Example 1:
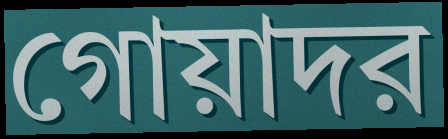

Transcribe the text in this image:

গোয়াদর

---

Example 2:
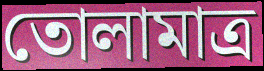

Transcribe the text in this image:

তোলামাত্র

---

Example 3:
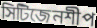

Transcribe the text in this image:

সিটিজেনশীপ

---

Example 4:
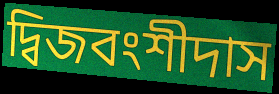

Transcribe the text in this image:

দ্বিজবংশীদাস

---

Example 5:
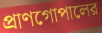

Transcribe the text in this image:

প্রাণগোপালের